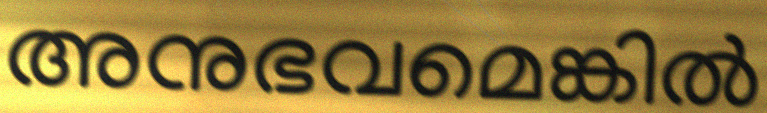
അനുഭവമെങ്കിൽ